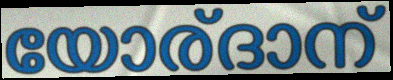
യോര്ദാന്